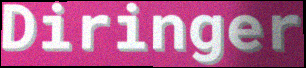
Diringer